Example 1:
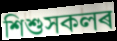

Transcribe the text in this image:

শিশুসকলৰ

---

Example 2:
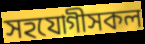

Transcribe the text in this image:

সহযোগীসকল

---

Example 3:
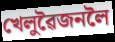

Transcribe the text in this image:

খেলুৱৈজনলৈ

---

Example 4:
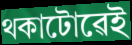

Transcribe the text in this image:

থকাটোৱেই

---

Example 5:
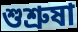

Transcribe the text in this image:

শুশ্ৰুষা